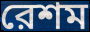
রেশম